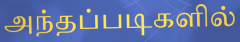
அந்தப்படிகளில்